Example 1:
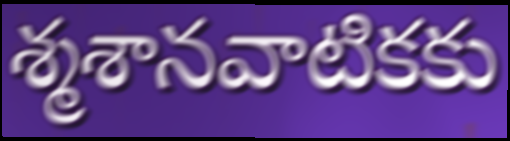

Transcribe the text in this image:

శ్మశానవాటికకు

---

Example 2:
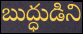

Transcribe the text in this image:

బుద్ధుడిని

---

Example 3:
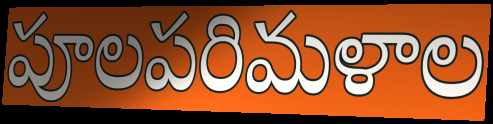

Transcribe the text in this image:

పూలపరిమళాల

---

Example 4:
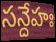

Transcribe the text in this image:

సన్దేహః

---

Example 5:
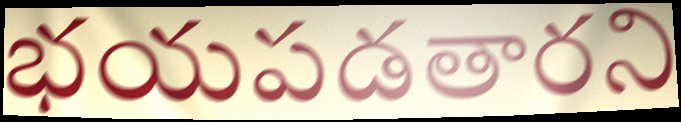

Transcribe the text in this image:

భయపడతారని